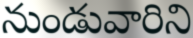
నుండువారిని